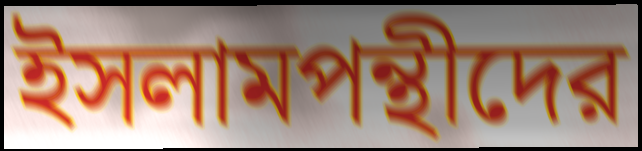
ইসলামপন্থীদের